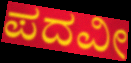
ಪದವೀ